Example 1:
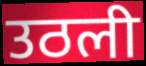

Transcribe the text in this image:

उठली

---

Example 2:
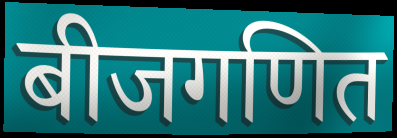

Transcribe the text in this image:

बीजगणित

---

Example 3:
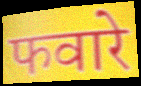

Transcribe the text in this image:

फवारे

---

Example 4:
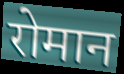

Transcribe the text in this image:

रोमान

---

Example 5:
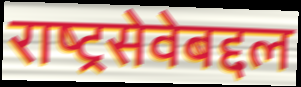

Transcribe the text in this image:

राष्ट्रसेवेबद्दल